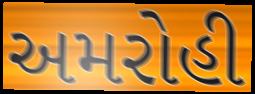
અમરોહી